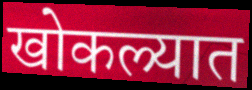
खोकल्यात